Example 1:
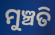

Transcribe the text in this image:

ମୁଞ୍ଚତି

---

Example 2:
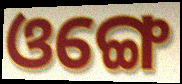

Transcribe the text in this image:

ଓଙ୍ଗେ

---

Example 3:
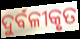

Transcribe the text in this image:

ଦୁର୍ବଳୀକୃତ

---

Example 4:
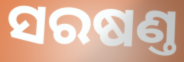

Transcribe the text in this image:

ସରଷଣ୍ତ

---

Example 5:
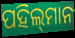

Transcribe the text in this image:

ପହିଲ୍‌ମାନ